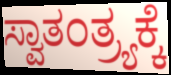
ಸ್ವಾತಂತ್ರ್ಯಕ್ಕೆ